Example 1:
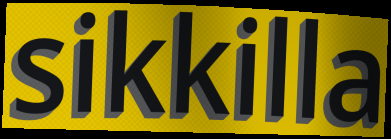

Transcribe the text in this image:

sikkilla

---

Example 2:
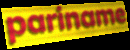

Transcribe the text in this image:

pariname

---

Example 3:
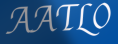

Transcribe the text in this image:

AATLO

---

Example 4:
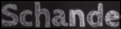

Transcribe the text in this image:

Schande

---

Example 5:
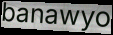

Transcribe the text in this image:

banawyo